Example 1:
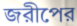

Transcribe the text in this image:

জরীপের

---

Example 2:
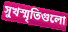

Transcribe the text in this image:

সুখস্মৃতিগুলো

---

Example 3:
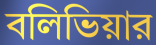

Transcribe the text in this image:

বলিভিয়ার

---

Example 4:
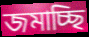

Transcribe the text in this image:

জমাচ্ছি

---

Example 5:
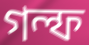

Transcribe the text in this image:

গল্ফ